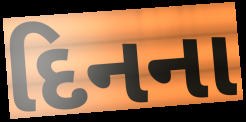
દિનના